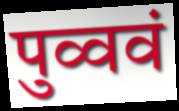
पुव्ववं